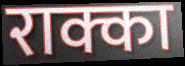
राक्का